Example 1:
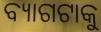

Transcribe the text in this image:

ବ୍ୟାଗଟାକୁ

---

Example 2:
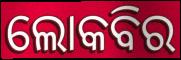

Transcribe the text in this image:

ଲୋକବିର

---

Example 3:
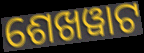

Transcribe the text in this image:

ଶେଖୱାଟ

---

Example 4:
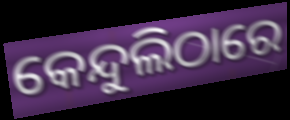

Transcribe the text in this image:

କେନ୍ଦୁଲିଠାରେ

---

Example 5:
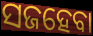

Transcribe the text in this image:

ସଜହେବା